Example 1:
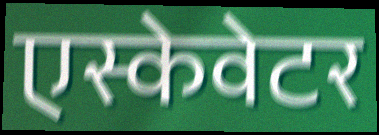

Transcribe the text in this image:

एस्केवेटर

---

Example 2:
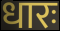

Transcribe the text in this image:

धारः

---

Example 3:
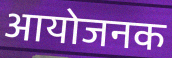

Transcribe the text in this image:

आयोजनक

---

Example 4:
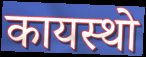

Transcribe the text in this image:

कायस्थो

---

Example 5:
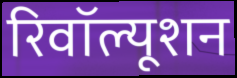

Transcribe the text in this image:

रिवॉल्यूशन